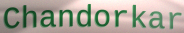
Chandorkar